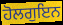
ਹੋਲਗੁਇਨ